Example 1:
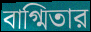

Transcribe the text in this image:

বাগ্মিতার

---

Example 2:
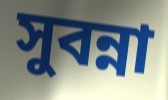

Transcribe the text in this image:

সুবন্না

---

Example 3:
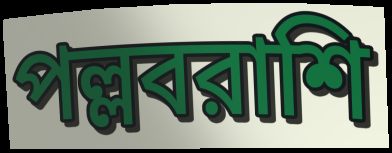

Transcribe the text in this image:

পল্লবরাশি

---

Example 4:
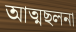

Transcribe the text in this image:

আত্মছলনা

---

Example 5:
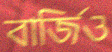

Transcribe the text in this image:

বার্জিও